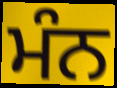
ਮੰਨ